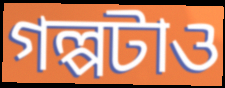
গল্পটাও